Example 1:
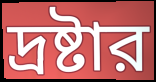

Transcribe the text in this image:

দ্রষ্টার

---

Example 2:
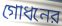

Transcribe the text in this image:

গোধনের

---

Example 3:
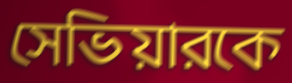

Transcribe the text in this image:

সেভিয়ারকে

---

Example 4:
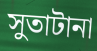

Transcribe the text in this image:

সুতাটানা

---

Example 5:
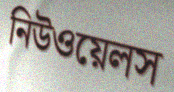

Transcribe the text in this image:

নিউওয়েলস